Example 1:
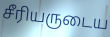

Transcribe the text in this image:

சீரியருடைய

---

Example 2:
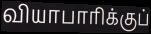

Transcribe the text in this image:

வியாபாரிக்குப்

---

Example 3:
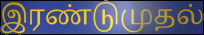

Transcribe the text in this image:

இரண்டுமுதல்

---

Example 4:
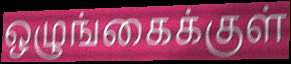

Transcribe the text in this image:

ஒழுங்கைக்குள்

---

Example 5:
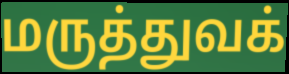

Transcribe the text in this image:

மருத்துவக்